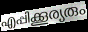
എപ്പിക്കൂര്യരും